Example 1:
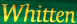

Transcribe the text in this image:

Whitten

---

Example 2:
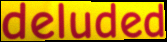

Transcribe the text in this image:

deluded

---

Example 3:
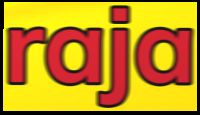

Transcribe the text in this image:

raja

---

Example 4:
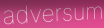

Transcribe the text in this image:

adversum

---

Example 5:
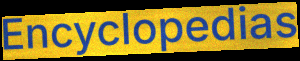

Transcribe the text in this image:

Encyclopedias